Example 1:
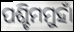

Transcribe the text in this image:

ପଶ୍ଚିମମୁହାଁ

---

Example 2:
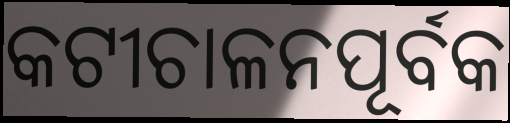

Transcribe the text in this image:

କଟୀଚାଳନପୂର୍ବକ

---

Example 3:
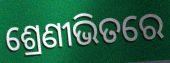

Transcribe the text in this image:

ଶ୍ରେଣୀଭିତରେ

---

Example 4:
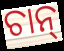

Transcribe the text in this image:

ଚାନ୍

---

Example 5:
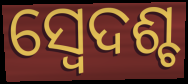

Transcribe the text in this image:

ସ୍ବେଦଶ୍ଚ